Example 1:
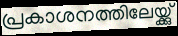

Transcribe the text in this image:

പ്രകാശനത്തിലേയ്ക്കു്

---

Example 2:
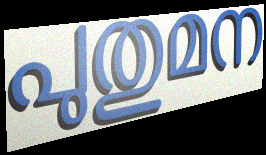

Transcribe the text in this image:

പുതുമന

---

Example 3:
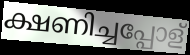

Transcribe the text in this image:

ക്ഷണിച്ചപ്പോള്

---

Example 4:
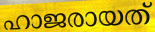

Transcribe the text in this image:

ഹാജരായത്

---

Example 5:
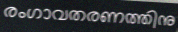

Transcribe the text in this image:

രംഗാവതരണത്തിനു